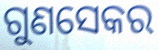
ଗୁଣସେକର